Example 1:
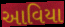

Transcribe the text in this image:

આવિયા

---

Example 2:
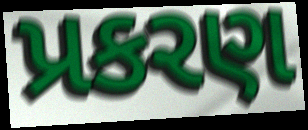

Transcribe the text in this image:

પ્રકરણ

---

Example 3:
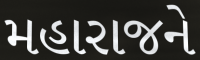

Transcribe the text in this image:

મહારાજને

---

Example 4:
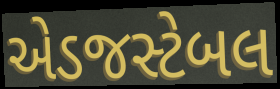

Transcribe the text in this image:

એડજસ્ટેબલ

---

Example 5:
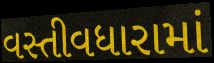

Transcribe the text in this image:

વસ્તીવધારામાં